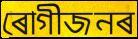
ৰোগীজনৰ